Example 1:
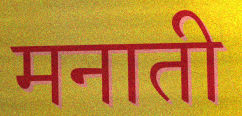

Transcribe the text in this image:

मनाती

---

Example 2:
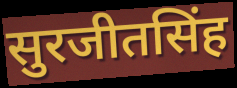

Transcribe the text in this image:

सुरजीतसिंह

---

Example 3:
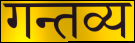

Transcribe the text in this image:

गन्तव्य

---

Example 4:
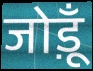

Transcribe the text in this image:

जोड़ूँ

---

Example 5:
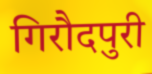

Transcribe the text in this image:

गिरौदपुरी